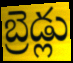
బ్రెడ్లు